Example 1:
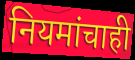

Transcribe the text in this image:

नियमांचाही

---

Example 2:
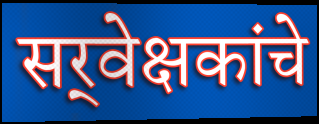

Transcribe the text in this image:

सर्वेक्षकांचे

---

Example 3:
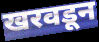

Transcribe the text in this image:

खरवडून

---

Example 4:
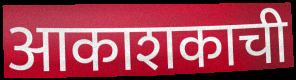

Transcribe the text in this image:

आकाशकाची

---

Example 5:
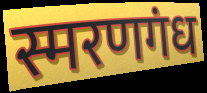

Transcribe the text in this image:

स्मरणगंध